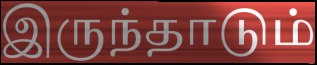
இருந்தாடும்